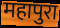
महापुरा